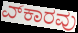
ಎ್‍ಕಾರವು